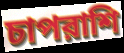
চাপরাশি